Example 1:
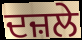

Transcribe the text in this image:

ਦਜ਼ਲੇ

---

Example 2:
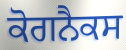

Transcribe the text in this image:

ਕੋਗਨੈਕਸ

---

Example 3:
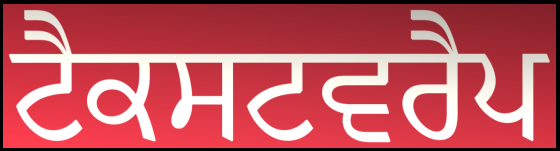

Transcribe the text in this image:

ਟੈਕਸਟਵਰੈਪ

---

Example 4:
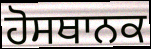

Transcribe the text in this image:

ਹੋਸਥਾਨਕ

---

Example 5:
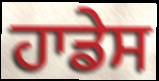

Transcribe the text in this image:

ਹਾਡੇਸ